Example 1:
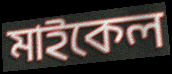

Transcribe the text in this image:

মাইকেল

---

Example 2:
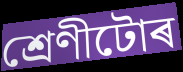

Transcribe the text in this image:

শ্ৰেণীটোৰ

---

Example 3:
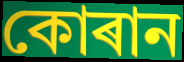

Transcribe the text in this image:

কোৰান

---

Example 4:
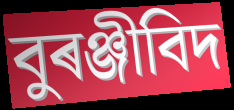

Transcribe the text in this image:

বুৰঞ্জীবিদ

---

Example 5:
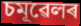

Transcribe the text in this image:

চমূৱেলৰ